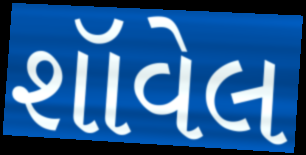
શૉવેલ